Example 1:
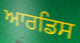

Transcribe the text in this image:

ਆਰਡਿਸ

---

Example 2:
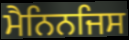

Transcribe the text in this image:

ਮੈਨਿਨਜਿਸ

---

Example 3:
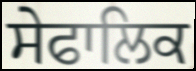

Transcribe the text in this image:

ਸੇਫਾਲਿਕ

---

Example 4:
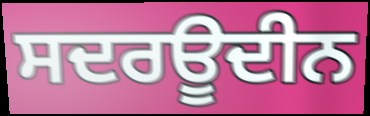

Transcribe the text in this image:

ਸਦਰਊਦੀਨ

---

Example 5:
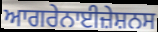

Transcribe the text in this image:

ਆਗਰੇਨਾਈਜ਼ੇਸ਼ਨਸ